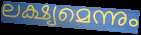
ലക്ഷ്യമെന്നും